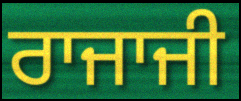
ਰਾਜਾਜੀ